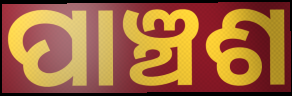
ପାଞ୍ଚଶ